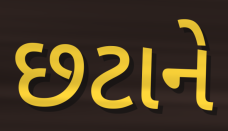
છટાને